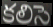
కలిసె